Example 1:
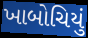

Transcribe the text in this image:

ખાબોચિયું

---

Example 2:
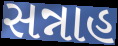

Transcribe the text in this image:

સન્નાહ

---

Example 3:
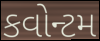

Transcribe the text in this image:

કવોન્ટમ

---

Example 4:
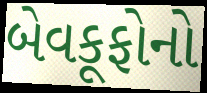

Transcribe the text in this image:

બેવકૂફોનો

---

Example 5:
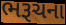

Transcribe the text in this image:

ભરૂચના